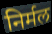
निर्मल